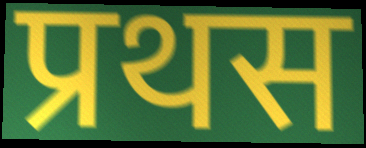
प्रथस